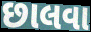
છાલવા